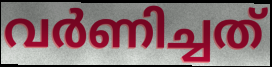
വർണിച്ചത്